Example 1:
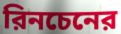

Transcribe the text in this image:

রিনচেনের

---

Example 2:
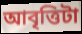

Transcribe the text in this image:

আবৃত্তিটা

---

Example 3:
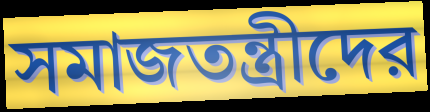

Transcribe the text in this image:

সমাজতন্ত্রীদের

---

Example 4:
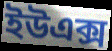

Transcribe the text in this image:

ইউএক্স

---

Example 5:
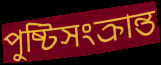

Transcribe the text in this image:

পুষ্টিসংক্রান্ত